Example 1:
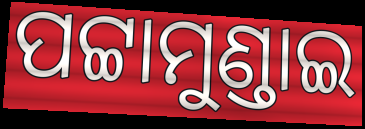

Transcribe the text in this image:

ପଟ୍ଟାମୁଣ୍ଡାଇ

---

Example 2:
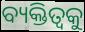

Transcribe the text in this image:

ବ୍ୟକ୍ତିତ୍ୱକୁ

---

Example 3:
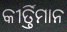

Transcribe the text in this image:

କୀର୍ତ୍ତିମାନ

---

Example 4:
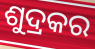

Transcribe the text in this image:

ଶୁଦ୍ରକର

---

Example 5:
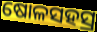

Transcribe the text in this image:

ଷୋଳସହସ୍ର